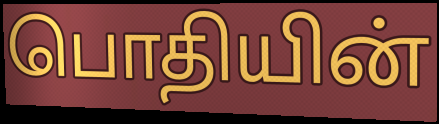
பொதியின்